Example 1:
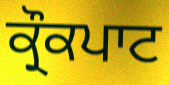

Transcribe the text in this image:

ਕ੍ਰੌਕਪਾਟ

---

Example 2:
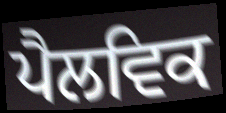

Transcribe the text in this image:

ਪੈਲਵਿਕ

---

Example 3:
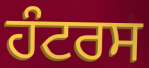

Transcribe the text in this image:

ਹੰਟਰਸ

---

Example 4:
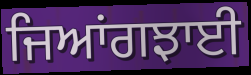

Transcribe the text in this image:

ਜਿਆਂਗਝਾਈ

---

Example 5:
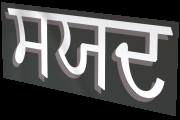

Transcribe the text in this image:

ਸਯਦ